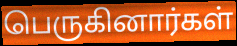
பெருகினார்கள்